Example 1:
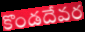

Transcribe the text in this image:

కొండదేవర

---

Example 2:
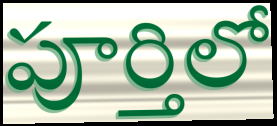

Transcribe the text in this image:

పూర్తిలో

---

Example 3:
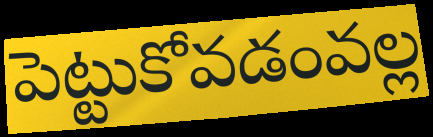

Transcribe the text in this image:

పెట్టుకోవడంవల్ల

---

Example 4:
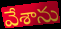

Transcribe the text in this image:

వేశాను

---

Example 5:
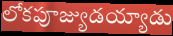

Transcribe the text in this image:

లోకపూజ్యుడయ్యాడు